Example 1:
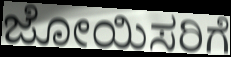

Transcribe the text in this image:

ಜೋಯಿಸರಿಗೆ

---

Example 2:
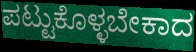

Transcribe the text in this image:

ಪಟ್ಟುಕೊಳ್ಳಬೇಕಾದ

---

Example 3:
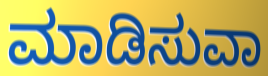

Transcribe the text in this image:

ಮಾಡಿಸುವಾ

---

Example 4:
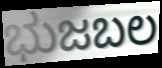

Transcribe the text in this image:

ಭುಜಬಲ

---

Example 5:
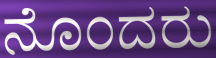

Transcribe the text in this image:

ನೊಂದರು